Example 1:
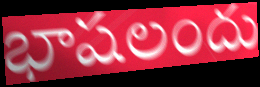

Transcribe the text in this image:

భాషలందు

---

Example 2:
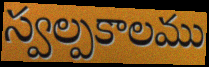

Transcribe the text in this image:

స్వల్పకాలము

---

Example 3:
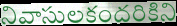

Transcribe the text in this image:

నివాసులకందరికిని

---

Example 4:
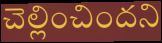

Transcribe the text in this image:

చెల్లించిందని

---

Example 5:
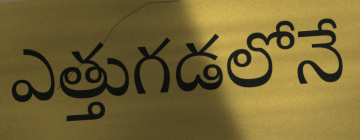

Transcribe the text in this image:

ఎత్తుగడలోనే